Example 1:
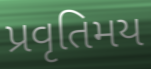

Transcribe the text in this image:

પ્રવૃતિમય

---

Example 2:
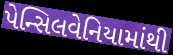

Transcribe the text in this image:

પેન્સિલવેનિયામાંથી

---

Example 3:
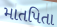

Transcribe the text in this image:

માતપિતા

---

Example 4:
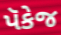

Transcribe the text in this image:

પૅકેજ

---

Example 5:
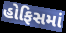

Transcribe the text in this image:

હોફિસમાં